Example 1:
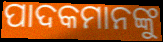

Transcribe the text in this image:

ପାଦକମାନଙ୍କୁ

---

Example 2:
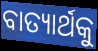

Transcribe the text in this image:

ବାତ୍ୟାର୍ଥକୁ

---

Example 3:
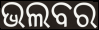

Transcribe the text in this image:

ଭଲବର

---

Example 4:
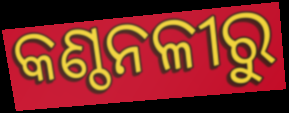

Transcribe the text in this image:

କଣ୍ଠନଳୀରୁ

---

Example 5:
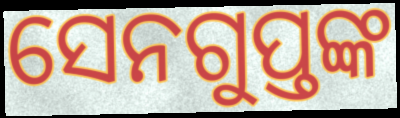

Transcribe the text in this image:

ସେନଗୁପ୍ତଙ୍କ